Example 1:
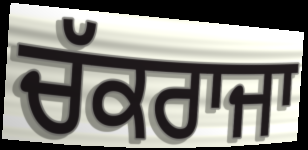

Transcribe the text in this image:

ਚੱਕਰਾਜਾ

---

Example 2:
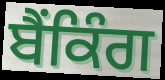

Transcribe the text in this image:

ਬੈਂਕਿੰਗ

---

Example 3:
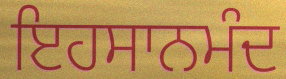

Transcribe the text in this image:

ਇਹਸਾਨਮੰਦ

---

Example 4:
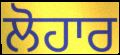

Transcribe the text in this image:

ਲੋਹਾਰ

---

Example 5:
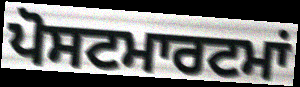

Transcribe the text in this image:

ਪੋਸਟਮਾਰਟਮਾਂ